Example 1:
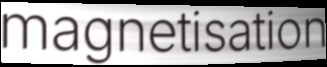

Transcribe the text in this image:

magnetisation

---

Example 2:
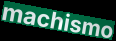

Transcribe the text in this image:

machismo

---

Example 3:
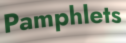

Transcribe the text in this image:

Pamphlets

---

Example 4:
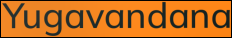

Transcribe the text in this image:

Yugavandana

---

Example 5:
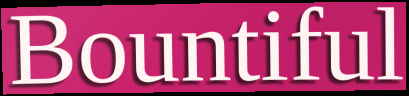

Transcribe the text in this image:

Bountiful